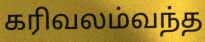
கரிவலம்வந்த